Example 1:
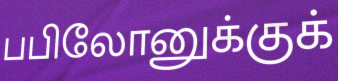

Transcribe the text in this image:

பபிலோனுக்குக்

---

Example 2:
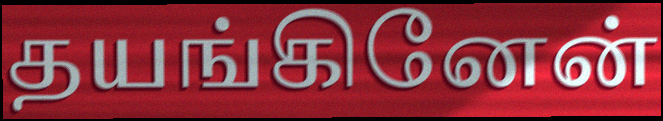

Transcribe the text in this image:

தயங்கினேன்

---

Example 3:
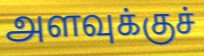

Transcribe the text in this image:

அளவுக்குச்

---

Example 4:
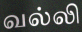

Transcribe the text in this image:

வல்லி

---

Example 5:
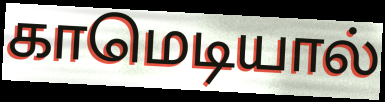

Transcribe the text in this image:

காமெடியால்